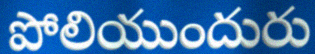
పోలియుందురు